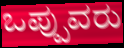
ಒಪ್ಪುವರು